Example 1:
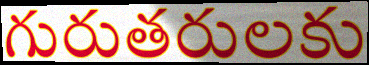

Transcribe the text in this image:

గురుతరులకు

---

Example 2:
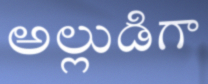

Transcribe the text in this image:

అల్లుడిగా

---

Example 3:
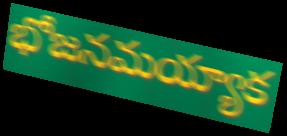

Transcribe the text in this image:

భోజనమయ్యాక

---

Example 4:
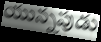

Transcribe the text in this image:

యున్నపుడు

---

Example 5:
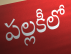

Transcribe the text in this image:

పల్లకీలో